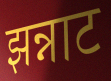
झन्नाट